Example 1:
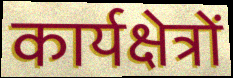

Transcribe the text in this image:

कार्यक्षेत्रों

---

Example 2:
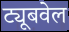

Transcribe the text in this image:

ट्यूबवेल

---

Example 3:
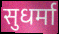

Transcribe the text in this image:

सुधर्मा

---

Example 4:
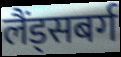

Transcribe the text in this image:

लैंड्सबर्ग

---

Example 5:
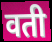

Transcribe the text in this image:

वती